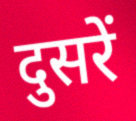
दुसरें